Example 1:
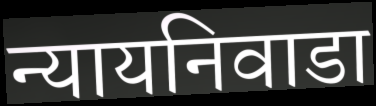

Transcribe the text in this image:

न्यायनिवाडा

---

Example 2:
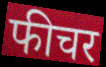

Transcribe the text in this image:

फीचर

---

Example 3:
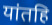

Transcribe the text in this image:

यांतहि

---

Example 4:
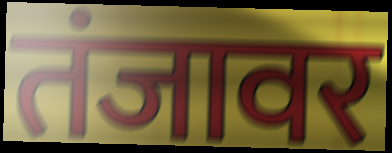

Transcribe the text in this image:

तंजावर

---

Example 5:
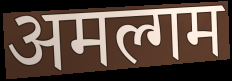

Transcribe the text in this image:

अमल्गम